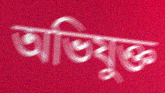
অভিযুক্ত